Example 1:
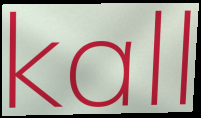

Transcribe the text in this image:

kall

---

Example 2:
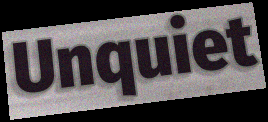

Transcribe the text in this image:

Unquiet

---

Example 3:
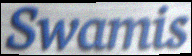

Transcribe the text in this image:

Swamis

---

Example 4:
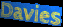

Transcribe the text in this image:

Davies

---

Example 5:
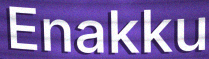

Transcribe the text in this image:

Enakku